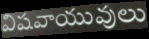
విషవాయువులు